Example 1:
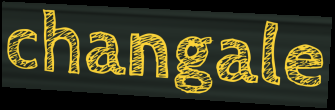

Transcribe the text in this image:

changale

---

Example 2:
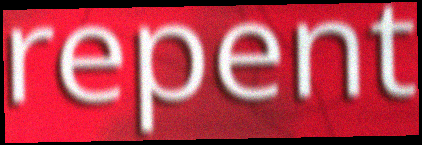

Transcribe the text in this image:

repent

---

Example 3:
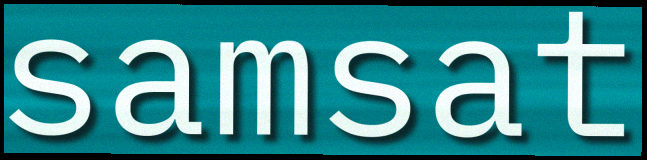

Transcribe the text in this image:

samsat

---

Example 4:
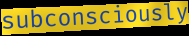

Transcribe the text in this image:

subconsciously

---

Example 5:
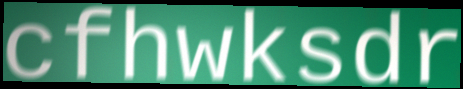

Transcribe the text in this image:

cfhwksdr